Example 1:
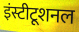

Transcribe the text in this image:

इंस्टीटूशनल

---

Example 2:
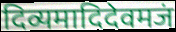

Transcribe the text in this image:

दिव्यमादिदेवमजं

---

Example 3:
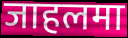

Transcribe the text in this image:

जाहलमा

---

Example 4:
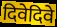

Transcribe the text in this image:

दिवेदिवे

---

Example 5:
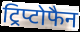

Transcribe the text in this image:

ट्रिप्टोफैन